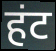
हंट